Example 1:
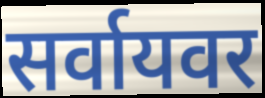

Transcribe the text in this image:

सर्वायवर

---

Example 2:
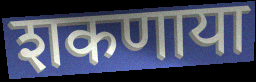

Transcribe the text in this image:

शकणाया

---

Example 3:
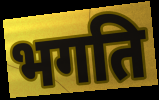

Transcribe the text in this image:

भगति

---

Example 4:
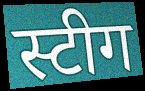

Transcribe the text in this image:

स्टीग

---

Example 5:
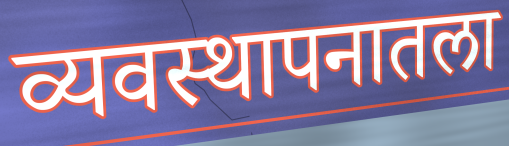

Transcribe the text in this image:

व्यवस्थापनातला